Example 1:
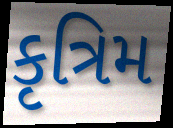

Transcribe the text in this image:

કૃત્રિમ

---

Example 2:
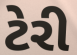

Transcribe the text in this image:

ટેરી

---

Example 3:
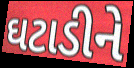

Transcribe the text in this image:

ઘટાડીને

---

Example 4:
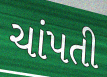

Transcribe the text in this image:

ચાંપતી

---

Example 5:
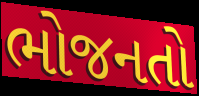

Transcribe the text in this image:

ભોજનતો